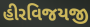
હીરવિજયજી